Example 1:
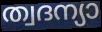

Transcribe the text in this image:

ത്വദന്യാ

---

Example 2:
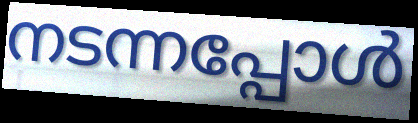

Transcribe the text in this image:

നടന്നപ്പോൾ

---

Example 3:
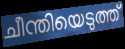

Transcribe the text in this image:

ചീന്തിയെടുത്ത്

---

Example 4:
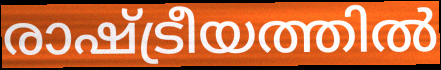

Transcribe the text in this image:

രാഷ്ട്രീയത്തിൽ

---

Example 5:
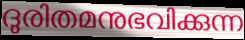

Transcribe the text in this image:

ദുരിതമനുഭവിക്കുന്ന